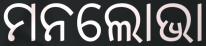
ମନଲୋଭା